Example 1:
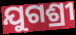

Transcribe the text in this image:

ଯୁଗଶ୍ରୀ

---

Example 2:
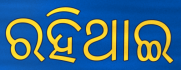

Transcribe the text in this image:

ରହିଥାଇ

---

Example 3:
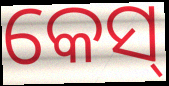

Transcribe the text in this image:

କେସ୍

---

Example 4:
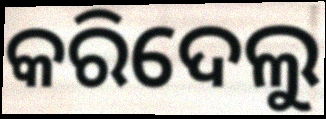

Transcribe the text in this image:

କରିଦେଲୁ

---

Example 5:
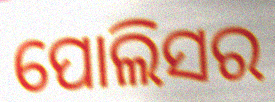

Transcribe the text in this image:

ପୋଲିସର